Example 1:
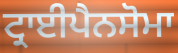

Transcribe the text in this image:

ਟ੍ਰਾਈਪੈਨਸੋਮਾ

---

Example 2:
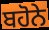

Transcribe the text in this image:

ਬਹੋਨੇ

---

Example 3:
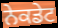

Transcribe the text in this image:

ਨੇਕਡੇਟ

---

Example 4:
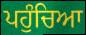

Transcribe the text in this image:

ਪਹੁੰਚਿਆ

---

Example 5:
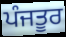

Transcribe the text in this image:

ਪੰਜਤੂਰ